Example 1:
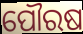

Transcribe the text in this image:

ପୌରଷ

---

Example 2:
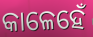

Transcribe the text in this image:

କାଳେହେଁ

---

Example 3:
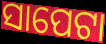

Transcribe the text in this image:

ସାପେଟା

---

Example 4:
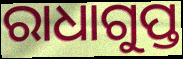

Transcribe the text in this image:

ରାଧାଗୁପ୍ତ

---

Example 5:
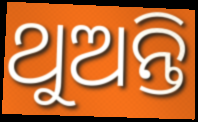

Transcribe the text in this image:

ଥୁଅନ୍ତି